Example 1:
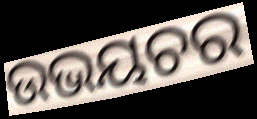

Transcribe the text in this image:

ଉଭୟଚର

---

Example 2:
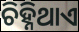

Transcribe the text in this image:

ଚିହ୍ନିଥାଏ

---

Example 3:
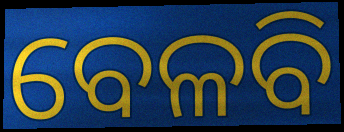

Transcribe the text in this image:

ବେଳବି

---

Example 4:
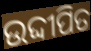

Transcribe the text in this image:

ଉଦ୍ଦୀପିତ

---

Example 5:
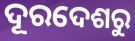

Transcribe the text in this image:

ଦୂରଦେଶରୁ